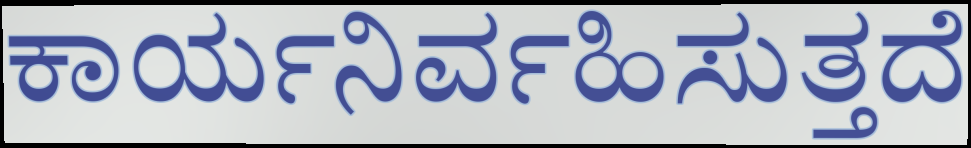
ಕಾರ್ಯನಿರ್ವಹಿಸುತ್ತದೆ